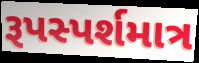
રૂપસ્પર્શમાત્ર